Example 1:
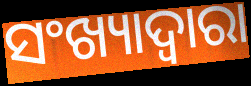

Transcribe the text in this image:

ସଂଖ୍ୟାଦ୍ଵାରା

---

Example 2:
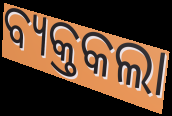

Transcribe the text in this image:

ବ୍ୟକ୍ତକଲା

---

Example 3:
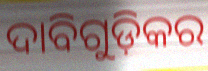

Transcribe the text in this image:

ଦାବିଗୁଡ଼ିକର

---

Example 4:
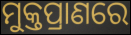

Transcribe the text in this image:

ମୁକ୍ତପ୍ରାଣରେ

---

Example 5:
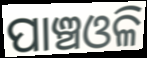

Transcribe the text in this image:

ପାଞ୍ଚଓଳି